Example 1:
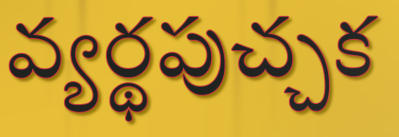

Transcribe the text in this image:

వ్యర్థపుచ్చక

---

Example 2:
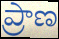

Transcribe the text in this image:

ప్రాణ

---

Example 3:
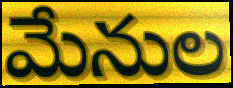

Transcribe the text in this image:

మేనుల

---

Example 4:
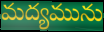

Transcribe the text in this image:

మద్యమును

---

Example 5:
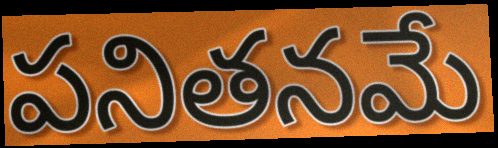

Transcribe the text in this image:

పనితనమే